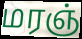
மரஞ்